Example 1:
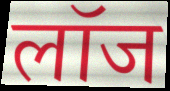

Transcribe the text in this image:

लॉज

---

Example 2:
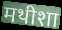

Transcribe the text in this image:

मथीशा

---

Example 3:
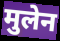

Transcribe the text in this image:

मुलेन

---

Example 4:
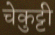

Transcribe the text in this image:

चेकुट्टी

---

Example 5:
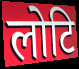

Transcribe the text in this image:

लोटि